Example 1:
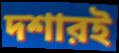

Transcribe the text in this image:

দশারই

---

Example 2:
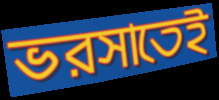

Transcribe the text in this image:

ভরসাতেই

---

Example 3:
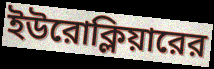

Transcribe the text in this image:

ইউরোক্লিয়ারের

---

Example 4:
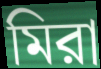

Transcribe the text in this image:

মিরা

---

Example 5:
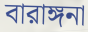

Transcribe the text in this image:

বারাঙ্গনা